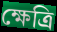
ক্ষেত্রি